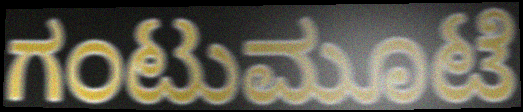
ಗಂಟುಮೂಟೆ